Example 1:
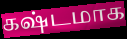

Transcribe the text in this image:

கஷ்டமாக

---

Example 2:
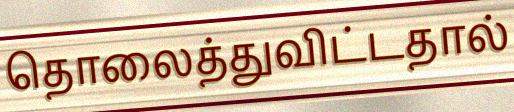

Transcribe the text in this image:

தொலைத்துவிட்டதால்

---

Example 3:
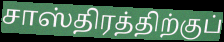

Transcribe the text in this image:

சாஸ்திரத்திற்குப்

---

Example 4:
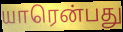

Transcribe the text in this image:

யாரென்பது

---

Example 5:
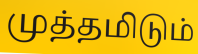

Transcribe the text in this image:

முத்தமிடும்